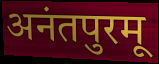
अनंतपुरमू